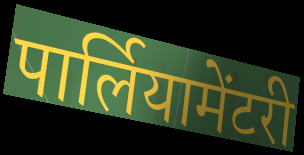
पार्लियामेंटरी